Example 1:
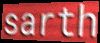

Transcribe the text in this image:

sarth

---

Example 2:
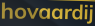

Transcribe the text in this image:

hovaardij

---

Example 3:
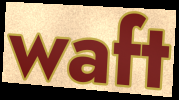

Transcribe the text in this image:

waft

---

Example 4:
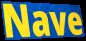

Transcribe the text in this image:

Nave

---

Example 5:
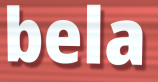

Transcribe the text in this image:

bela